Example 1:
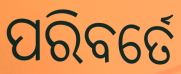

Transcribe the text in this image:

ପରିବର୍ତେ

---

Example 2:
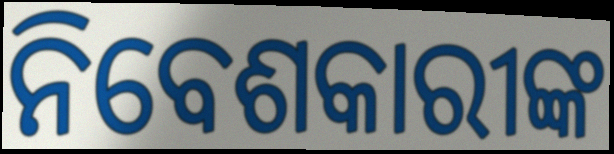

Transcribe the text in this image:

ନିବେଶକାରୀଙ୍କ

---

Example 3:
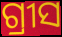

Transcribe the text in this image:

ଗ୍ରୀସ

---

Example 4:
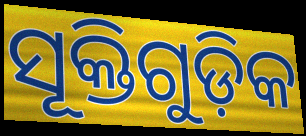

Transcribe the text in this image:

ସୂକ୍ତିଗୁଡ଼ିକ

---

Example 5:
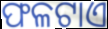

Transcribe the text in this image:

ଫଳଟାଏ